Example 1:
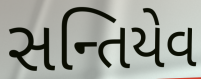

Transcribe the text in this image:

સન્તિયેવ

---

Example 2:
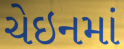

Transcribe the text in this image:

ચેઇનમાં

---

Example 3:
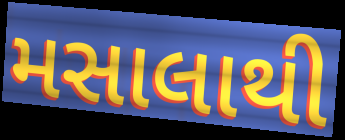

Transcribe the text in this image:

મસાલાથી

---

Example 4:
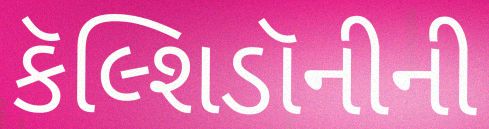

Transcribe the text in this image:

કૅલ્શિડૉનીની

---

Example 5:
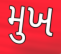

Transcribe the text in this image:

મુખ